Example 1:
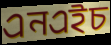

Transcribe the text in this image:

এনএইচ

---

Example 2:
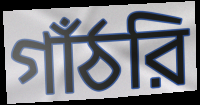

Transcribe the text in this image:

গাঁঠরি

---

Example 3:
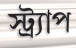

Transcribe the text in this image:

স্ট্র্যাপ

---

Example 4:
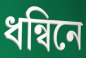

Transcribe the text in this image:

ধন্বিনে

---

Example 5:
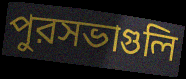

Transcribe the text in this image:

পুরসভাগুলি